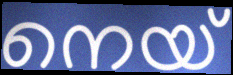
നെയ്